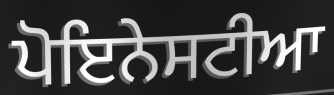
ਪੋਇਨੇਸਟੀਆ